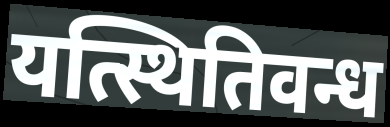
यत्स्थितिवन्ध